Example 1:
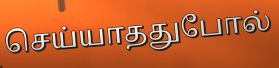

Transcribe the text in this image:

செய்யாததுபோல்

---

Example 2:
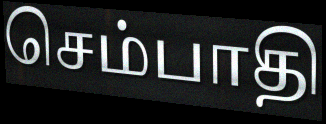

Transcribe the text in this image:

செம்பாதி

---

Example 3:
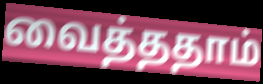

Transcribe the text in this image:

வைத்ததாம்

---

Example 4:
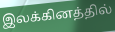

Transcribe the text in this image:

இலக்கினத்தில்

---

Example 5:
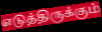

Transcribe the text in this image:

எடுத்திருக்கும்